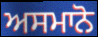
ਅਸਮਾਨੋ